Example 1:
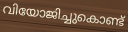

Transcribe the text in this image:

വിയോജിച്ചുകൊണ്ട്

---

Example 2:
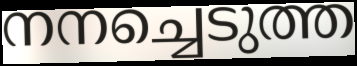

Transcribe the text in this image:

നനച്ചെടുത്ത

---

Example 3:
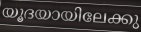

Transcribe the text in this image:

യൂദയായിലേക്കു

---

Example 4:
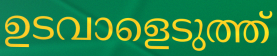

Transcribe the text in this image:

ഉടവാളെടുത്ത്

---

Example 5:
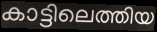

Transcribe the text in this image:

കാട്ടിലെത്തിയ